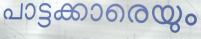
പാട്ടക്കാരെയും